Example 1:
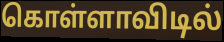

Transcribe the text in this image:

கொள்ளாவிடில்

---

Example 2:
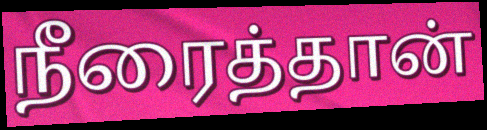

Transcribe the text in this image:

நீரைத்தான்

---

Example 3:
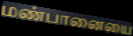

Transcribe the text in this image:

மண்பானையை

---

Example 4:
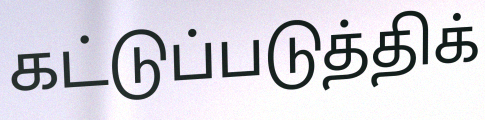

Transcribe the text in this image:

கட்டுப்படுத்திக்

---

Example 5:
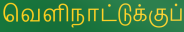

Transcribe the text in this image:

வெளிநாட்டுக்குப்